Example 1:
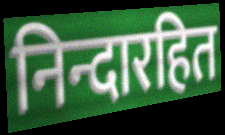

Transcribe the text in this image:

निन्दारहित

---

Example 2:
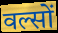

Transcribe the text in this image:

वल्सों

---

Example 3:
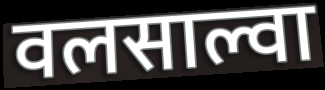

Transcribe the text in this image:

वलसाल्वा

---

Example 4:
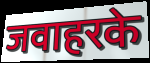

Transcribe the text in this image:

जवाहरके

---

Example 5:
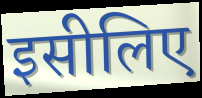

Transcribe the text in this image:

इसीलिए